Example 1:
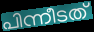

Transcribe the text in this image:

പിന്നീടത്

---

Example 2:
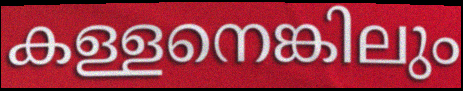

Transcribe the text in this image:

കള്ളനെങ്കിലും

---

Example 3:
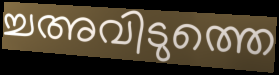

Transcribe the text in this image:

ച്ചഅവിടുത്തെ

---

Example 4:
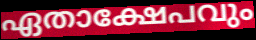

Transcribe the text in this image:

ഏതാക്ഷേപവും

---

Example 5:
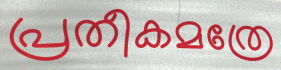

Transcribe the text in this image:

പ്രതീകമത്രേ